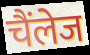
चैंलेज